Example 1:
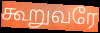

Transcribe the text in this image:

கூறுவரே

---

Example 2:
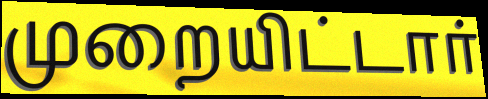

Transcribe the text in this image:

முறையிட்டார்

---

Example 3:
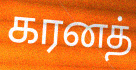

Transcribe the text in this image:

கரனத்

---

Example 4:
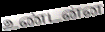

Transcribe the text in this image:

உண்டன்ன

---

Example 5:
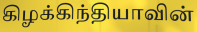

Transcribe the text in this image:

கிழக்கிந்தியாவின்